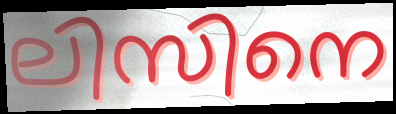
ലിസിനെ